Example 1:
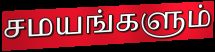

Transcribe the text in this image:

சமயங்களும்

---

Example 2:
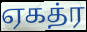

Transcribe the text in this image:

ஏகத்ர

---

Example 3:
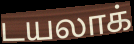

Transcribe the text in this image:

டயலாக்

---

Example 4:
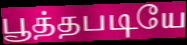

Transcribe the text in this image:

பூத்தபடியே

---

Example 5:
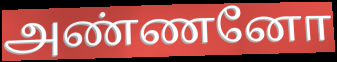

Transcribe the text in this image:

அண்ணனோ